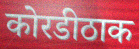
कोरडीठाक